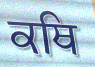
ਕਥਿ